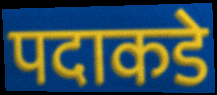
पदाकडे